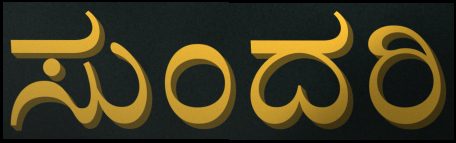
ಸುಂದರಿ